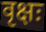
वृक्षः